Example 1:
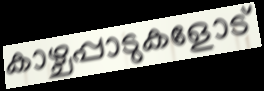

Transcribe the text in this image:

കാഴ്ചപ്പാടുകളോട്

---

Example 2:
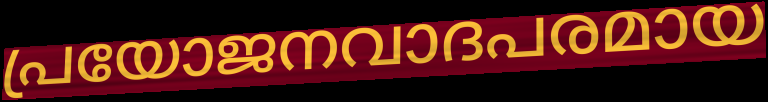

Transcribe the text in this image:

പ്രയോജനവാദപരമായ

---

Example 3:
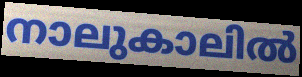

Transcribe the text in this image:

നാലുകാലിൽ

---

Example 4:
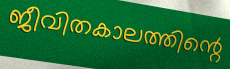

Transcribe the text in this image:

ജീവിതകാലത്തിന്റെ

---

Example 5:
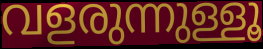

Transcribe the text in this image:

വളരുന്നുള്ളൂ